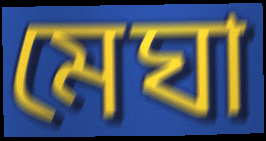
মেঘা